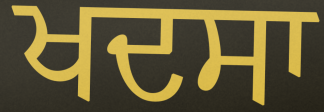
ਖਦਸਾ